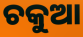
ଚକୁଆ